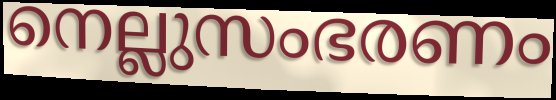
നെല്ലുസംഭരണം